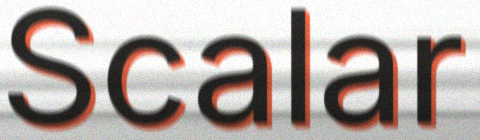
Scalar